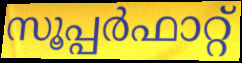
സൂപ്പർഫാറ്റ്